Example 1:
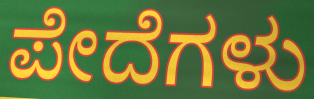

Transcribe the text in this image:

ಪೇದೆಗಳು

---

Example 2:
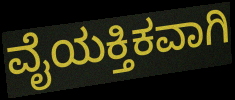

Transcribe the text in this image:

ವೈಯಕ್ತಿಕವಾಗಿ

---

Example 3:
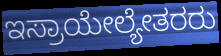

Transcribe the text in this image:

ಇಸ್ರಾಯೇಲ್ಯೇತರರು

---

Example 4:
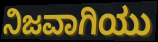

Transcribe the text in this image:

ನಿಜವಾಗಿಯು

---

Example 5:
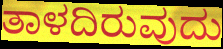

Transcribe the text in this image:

ತಾಳದಿರುವುದು